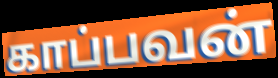
காப்பவன்